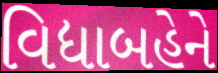
વિદ્યાબહેને